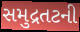
સમુદ્રતટની